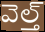
వెల్త్